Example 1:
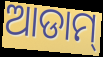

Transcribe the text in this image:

ଆଡାମ୍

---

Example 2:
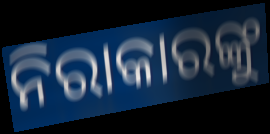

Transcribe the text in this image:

ନିରାକାରଙ୍କୁ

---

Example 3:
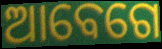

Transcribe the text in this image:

ଆବେଗେ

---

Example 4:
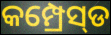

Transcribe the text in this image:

କମ୍ପ୍ରେସ୍‌ଡ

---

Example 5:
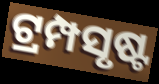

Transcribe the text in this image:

ଟ୍ରମ୍ପସୃଷ୍ଟ